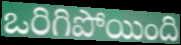
ఒరిగిపోయింది